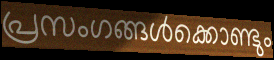
പ്രസംഗങ്ങൾക്കൊണ്ടും